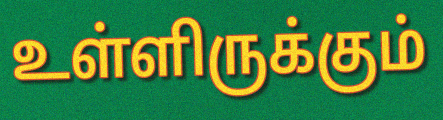
உள்ளிருக்கும்